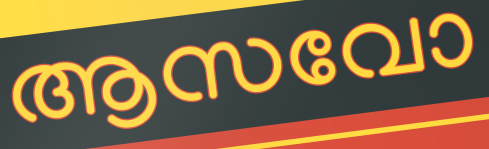
ആസവോ